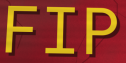
FIP